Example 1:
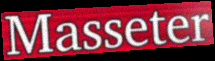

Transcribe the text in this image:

Masseter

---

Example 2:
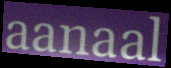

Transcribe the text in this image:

aanaal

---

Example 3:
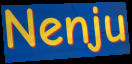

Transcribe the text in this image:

Nenju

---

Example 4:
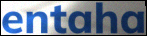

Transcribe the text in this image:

entaha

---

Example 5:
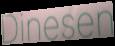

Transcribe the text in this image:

Dinesen